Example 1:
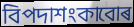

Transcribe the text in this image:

বিপদাশংকাবোৰ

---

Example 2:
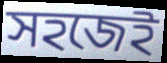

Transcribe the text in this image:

সহজেই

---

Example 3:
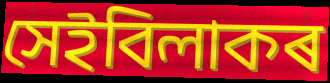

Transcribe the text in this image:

সেইবিলাকৰ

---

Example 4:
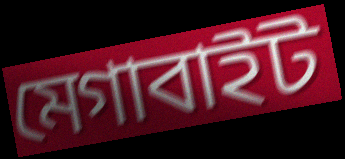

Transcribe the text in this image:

মেগাবাইট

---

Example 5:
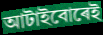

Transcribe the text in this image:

আটাইবোৰেই